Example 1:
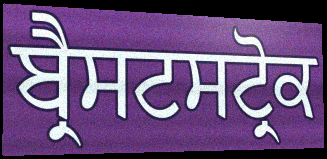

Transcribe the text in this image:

ਬ੍ਰੈਸਟਸਟ੍ਰੋਕ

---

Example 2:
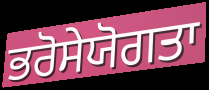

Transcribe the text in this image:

ਭਰੋਸੇਯੋਗਤਾ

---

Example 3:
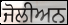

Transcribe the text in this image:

ਜੋਲੀਅਨ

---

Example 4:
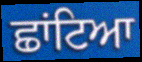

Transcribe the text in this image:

ਛਾਂਟਿਆ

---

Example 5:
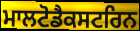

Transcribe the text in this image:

ਮਾਲਟੋਡੈਕਸਟਰਿਨ